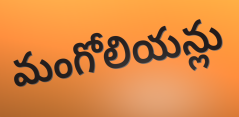
మంగోలియన్లు